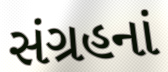
સંગ્રહનાં